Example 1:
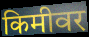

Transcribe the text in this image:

किमीवर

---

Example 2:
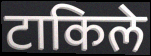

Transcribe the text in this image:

टाकिले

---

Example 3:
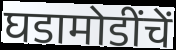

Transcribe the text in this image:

घडामोडींचें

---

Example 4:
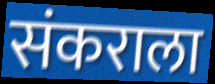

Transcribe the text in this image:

संकराला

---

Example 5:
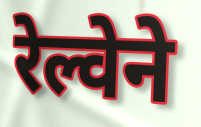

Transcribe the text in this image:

रेल्वेने